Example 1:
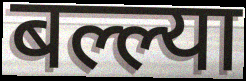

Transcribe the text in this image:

बल्ल्या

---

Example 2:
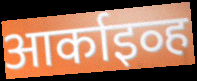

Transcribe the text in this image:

आर्काइव्ह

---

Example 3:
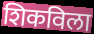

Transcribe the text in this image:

शिकविला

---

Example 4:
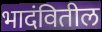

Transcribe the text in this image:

भादंवितील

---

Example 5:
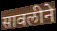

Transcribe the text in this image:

सावलीने